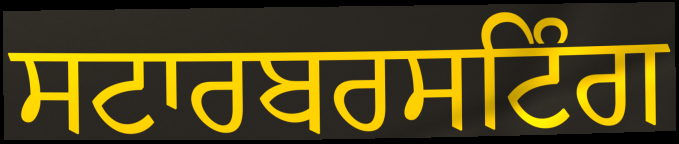
ਸਟਾਰਬਰਸਟਿੰਗ